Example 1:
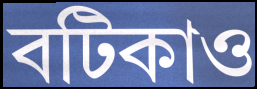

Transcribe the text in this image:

বটিকাও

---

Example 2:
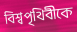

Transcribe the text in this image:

বিশ্বপৃথিবীকে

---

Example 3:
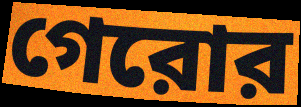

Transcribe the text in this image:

গেরোর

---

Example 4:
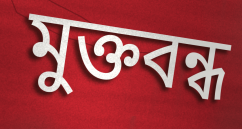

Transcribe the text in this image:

মুক্তবন্ধ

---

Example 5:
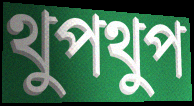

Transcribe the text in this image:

থুপথুপ